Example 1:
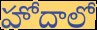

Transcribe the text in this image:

హోదాలో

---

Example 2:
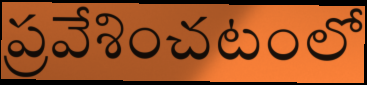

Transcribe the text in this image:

ప్రవేశించటంలో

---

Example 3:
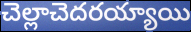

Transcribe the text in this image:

చెల్లాచెదరయ్యాయి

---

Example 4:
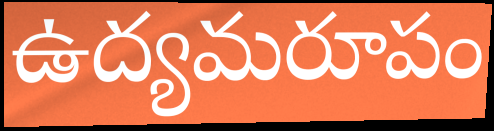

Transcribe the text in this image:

ఉద్యమరూపం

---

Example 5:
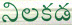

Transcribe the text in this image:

నిలకడ